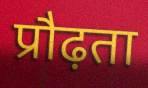
प्रौढ़ता